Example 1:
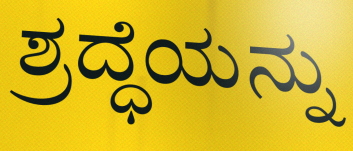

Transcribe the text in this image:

ಶ್ರದ್ಧೆಯನ್ನು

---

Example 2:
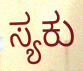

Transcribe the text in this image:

ಸ್ಯಕು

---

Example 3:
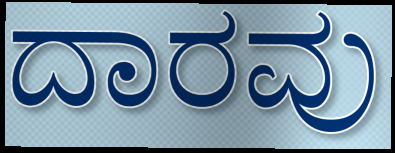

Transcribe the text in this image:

ದಾರವು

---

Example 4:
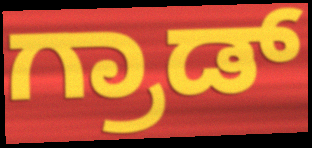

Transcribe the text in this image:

ಗ್ರಾಡ್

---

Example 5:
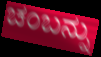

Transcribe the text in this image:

ಚಂಬನ್ನು